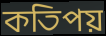
কতিপয়